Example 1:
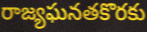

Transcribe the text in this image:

రాజ్యఘనతకొరకు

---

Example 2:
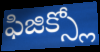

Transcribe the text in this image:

ఫిజిక్స్లో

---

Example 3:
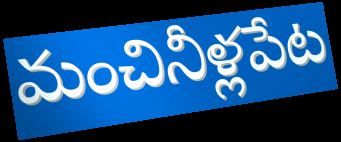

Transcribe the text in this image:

మంచినీళ్లపేట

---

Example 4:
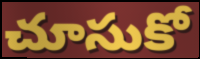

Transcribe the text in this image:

చూసుకో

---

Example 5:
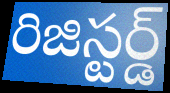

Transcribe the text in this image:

రిజిస్టర్డ్